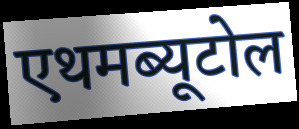
एथमब्यूटोल